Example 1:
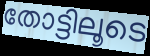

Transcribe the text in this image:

തോട്ടിലൂടെ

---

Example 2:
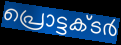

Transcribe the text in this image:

പ്രൊട്ടക്ടർ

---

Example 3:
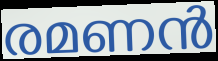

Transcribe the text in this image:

രമണൻ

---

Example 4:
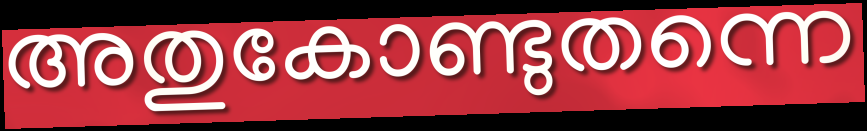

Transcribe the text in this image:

അതുകോണ്ടുതന്നെ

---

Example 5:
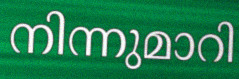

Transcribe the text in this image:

നിന്നുമാറി